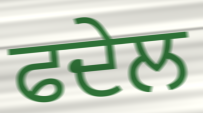
ਫਦੇਲ